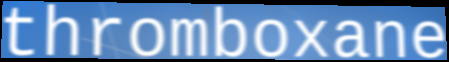
thromboxane